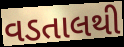
વડતાલથી